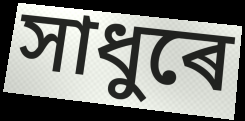
সাধুৰে